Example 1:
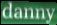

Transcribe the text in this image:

danny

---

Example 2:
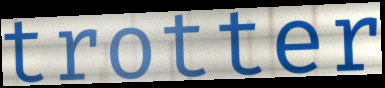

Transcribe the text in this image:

trotter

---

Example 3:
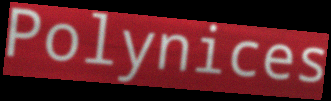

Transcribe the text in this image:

Polynices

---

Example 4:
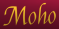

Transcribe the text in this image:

Moho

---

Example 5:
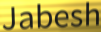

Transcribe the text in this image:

Jabesh